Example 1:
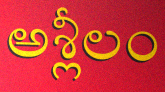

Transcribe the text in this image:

అశ్లీలం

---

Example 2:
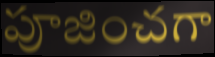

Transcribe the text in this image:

పూజించగా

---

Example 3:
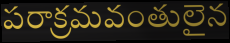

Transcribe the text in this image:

పరాక్రమవంతులైన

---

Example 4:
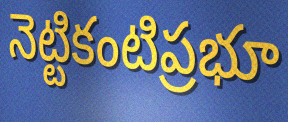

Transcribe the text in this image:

నెట్టికంటిప్రభూ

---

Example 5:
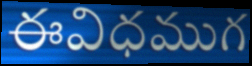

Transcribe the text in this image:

ఈవిధముగ